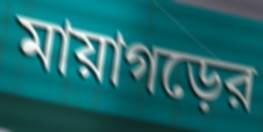
মায়াগড়ের